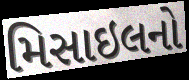
મિસાઇલનો